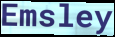
Emsley